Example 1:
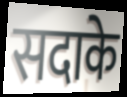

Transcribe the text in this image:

सदाके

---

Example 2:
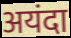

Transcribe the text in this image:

अयंदा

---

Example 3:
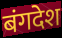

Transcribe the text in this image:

बंगदेश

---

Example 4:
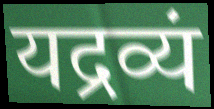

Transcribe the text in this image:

यद्रव्यं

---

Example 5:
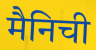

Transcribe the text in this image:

मैनिची